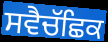
ਸਵੈਚੱਛਿਕ